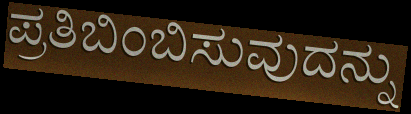
ಪ್ರತಿಬಿಂಬಿಸುವುದನ್ನು